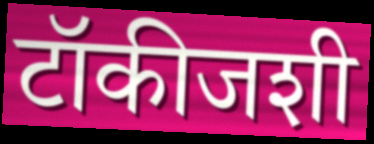
टॉकीजशी